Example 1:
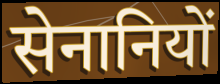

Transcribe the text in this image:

सेनानियों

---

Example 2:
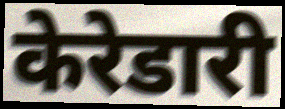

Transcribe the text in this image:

केरेडारी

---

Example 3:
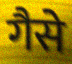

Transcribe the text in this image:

गैसे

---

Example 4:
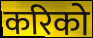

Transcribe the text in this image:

करिको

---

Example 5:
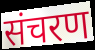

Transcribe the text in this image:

संचरण